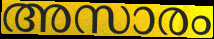
അസാരം